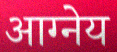
आग्नेय